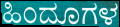
ಹಿಂದೂಗಳ